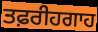
ਤਫ਼ਰੀਹਗਾਹ